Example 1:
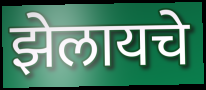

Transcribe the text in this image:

झेलायचे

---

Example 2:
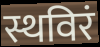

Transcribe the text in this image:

स्थविरं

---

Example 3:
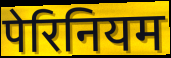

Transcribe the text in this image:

पेरिनियम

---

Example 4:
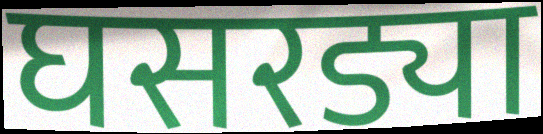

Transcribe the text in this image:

घसरड्या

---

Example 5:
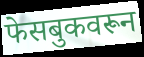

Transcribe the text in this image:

फेसबुकवरून